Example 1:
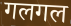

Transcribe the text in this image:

गलगल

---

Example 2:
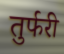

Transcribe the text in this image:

तुर्फरी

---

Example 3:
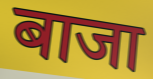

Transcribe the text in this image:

बाजा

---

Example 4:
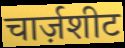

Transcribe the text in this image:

चार्ज़शीट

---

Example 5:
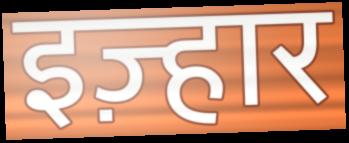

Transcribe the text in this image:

इज़्हार